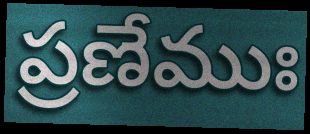
ప్రణేముః